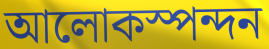
আলোকস্পন্দন